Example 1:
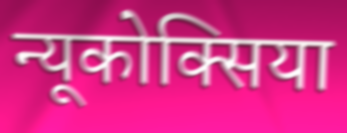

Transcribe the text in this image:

न्यूकोक्सिया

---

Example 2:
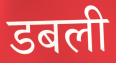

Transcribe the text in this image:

डबली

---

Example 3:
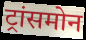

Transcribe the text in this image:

ट्रांसमोन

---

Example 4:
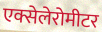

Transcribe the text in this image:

एक्सेलेरोमीटर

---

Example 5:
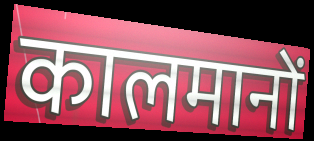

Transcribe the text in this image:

कालमानों